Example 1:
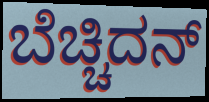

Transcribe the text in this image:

ಬೆಚ್ಚಿದನ್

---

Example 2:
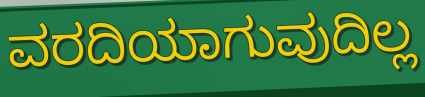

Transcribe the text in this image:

ವರದಿಯಾಗುವುದಿಲ್ಲ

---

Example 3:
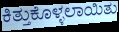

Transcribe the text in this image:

ಕಿತ್ತುಕೊಳ್ಳಲಾಯಿತು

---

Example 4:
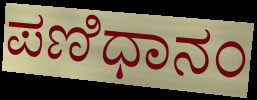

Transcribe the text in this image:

ಪಣಿಧಾನಂ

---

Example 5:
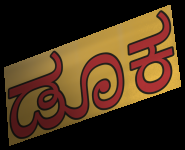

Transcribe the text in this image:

ಡೂಕ